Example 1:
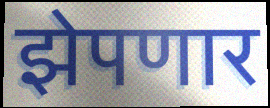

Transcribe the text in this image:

झेपणार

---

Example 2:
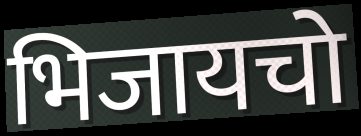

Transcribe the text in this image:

भिजायचो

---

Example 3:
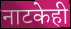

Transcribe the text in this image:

नाटकेही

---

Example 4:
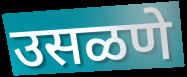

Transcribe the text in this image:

उसळणे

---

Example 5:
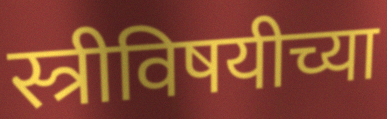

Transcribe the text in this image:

स्त्रीविषयीच्या